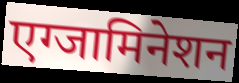
एग्‍जामिनेशन